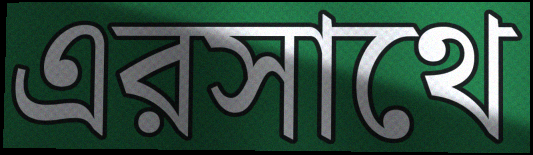
এরসাথে